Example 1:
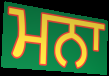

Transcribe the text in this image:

ਮਨਾ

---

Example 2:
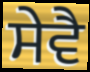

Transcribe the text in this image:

ਸੇਵੈ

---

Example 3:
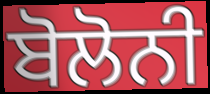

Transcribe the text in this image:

ਬੋਲੋਨੀ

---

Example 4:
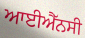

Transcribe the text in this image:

ਆਈਐੱਨਸੀ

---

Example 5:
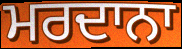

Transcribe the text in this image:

ਮਰਦਾਨਾ